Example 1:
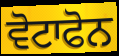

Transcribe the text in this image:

ਵੋਟਾਫੋਨ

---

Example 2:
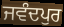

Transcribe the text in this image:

ਜਵੰਦਪੁਰ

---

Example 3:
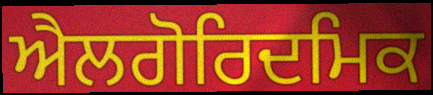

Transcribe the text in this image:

ਐਲਗੋਰਿਦਮਿਕ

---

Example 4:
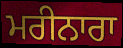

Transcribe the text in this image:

ਮਰੀਨਾਰਾ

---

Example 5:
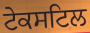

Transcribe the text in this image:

ਟੇਕਸਟਿਲ